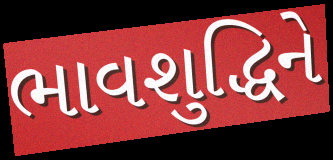
ભાવશુદ્ધિને